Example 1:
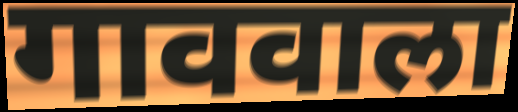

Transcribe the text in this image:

गाववाला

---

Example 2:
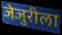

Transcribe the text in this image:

जेजुरीला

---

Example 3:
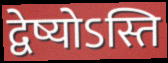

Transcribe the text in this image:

द्वेष्योऽस्ति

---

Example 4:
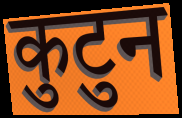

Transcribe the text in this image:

कुटुन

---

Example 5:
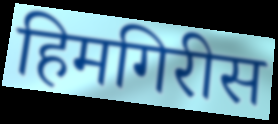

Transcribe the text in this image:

हिमगिरीस